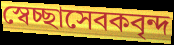
স্বেচ্ছাসেবকবৃন্দ